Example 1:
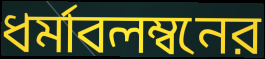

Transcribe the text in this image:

ধর্মাবলম্বনের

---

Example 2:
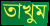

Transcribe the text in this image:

তাখুম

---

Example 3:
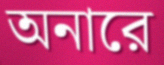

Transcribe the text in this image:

অনারে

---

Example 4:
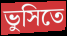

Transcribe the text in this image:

ভুসিতে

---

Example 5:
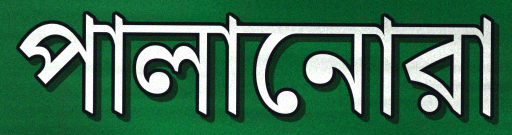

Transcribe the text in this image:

পালানোরা